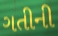
ગતીની